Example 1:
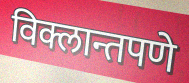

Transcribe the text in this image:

विक्लान्तपणे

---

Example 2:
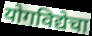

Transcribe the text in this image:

योगविद्येचा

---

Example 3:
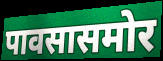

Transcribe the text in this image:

पावसासमोर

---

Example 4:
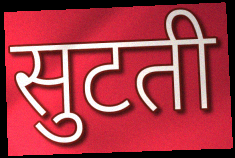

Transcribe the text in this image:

सुटती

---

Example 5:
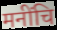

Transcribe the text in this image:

मनींचि